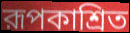
রূপকাশ্রিত